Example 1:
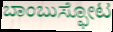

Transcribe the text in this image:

ಬಾಂಬುಸ್ಫೋಟ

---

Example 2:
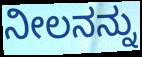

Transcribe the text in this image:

ನೀಲನನ್ನು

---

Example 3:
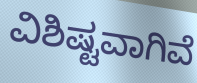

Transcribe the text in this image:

ವಿಶಿಷ್ಟವಾಗಿವೆ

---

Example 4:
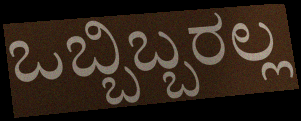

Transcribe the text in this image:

ಒಬ್ಬಿಬ್ಬರಲ್ಲ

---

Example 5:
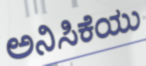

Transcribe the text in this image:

ಅನಿಸಿಕೆಯು